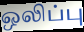
ஒலிப்பு